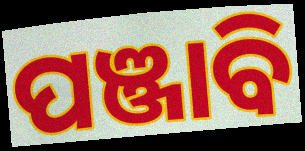
ପଞ୍ଜାବି